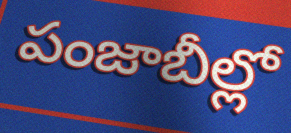
పంజాబీల్లో